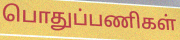
பொதுப்பணிகள்